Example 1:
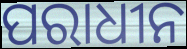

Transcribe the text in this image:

ପରାଧୀନ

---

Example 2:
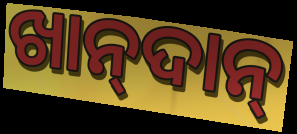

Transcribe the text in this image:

ଖାନ୍‍ଦାନ୍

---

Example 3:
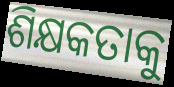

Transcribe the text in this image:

ଶିକ୍ଷକତାକୁ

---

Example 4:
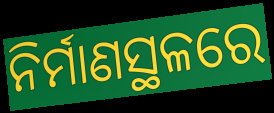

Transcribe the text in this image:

ନିର୍ମାଣସ୍ଥଳରେ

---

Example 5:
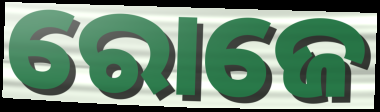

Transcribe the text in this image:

ରୋଜେ